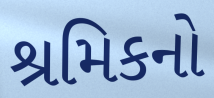
શ્રમિકનો